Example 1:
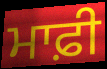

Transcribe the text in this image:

ਮਾਫ਼ੀ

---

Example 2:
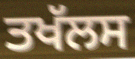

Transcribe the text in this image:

ਤਖੱਲਸ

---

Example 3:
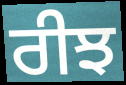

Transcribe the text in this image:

ਰੀਝ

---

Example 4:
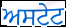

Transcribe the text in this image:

ਅਸਟੇਟ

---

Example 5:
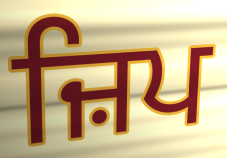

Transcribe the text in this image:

ਜ਼ਿਪ